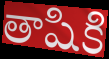
తాషికి